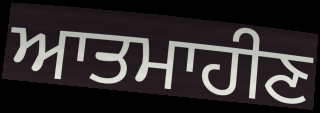
ਆਤਮਾਹੀਣ